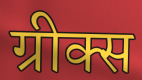
ग्रीक्स